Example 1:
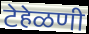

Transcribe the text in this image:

टेहेळणी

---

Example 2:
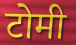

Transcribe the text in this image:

टोमी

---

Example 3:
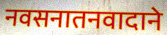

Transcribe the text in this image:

नवसनातनवादाने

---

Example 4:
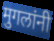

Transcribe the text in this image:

मुगलांनी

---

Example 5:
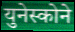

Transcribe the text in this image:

युनेस्कोने